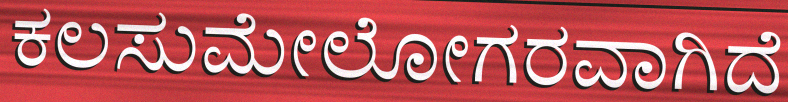
ಕಲಸುಮೇಲೋಗರವಾಗಿದೆ